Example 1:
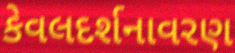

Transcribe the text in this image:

કેવલદર્શનાવરણ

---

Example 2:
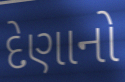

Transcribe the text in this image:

દેણાનો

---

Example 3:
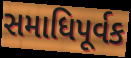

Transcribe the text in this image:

સમાધિપૂર્વક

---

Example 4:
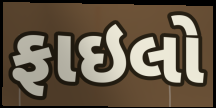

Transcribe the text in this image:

ફાઇલો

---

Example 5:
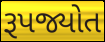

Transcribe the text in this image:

રૂપજ્યોત